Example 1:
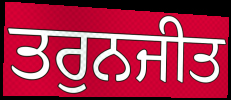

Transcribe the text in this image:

ਤਰੁਨਜੀਤ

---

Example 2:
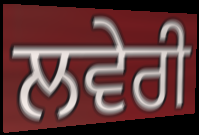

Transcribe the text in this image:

ਲਵੇਰੀ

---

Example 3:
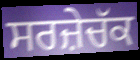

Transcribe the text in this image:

ਸਰਜ਼ੇਚੱਕ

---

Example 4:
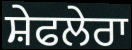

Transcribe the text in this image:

ਸ਼ੇਫਲੇਰਾ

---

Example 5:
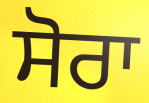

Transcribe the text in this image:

ਸੋਰਾ